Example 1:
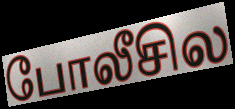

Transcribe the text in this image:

போலீசில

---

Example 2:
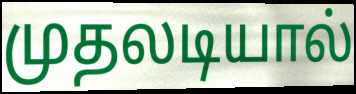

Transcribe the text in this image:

முதலடியால்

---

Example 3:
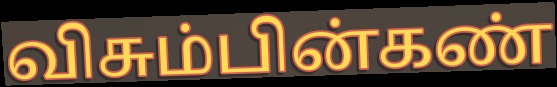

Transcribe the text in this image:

விசும்பின்கண்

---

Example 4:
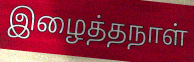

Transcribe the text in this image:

இழைத்தநாள்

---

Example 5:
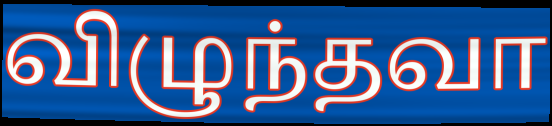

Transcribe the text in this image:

விழுந்தவா